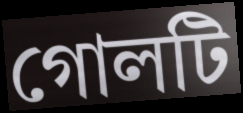
গোলটি